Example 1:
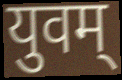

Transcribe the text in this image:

युवम्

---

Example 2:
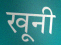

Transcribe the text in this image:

खूनी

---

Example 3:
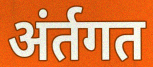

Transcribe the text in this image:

अंर्तगत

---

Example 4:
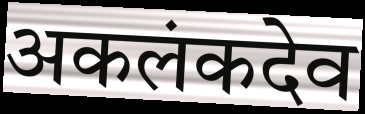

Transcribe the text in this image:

अकलंकदेव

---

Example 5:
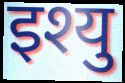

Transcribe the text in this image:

इश्यु